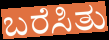
ಬರೆಸಿತು